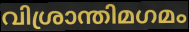
വിശ്രാന്തിമഗമം